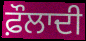
ਫ਼ੌਲਾਦੀ